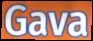
Gava